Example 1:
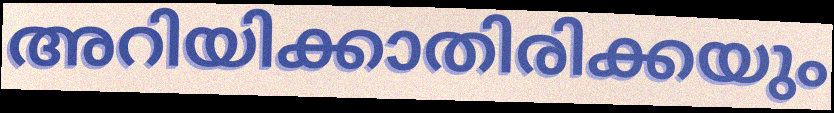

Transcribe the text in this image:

അറിയിക്കാതിരിക്കയും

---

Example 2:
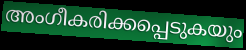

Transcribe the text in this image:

അംഗീകരിക്കപ്പെടുകയും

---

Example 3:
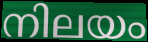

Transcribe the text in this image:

നിലയം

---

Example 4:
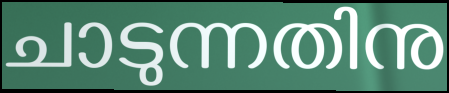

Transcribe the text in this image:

ചാടുന്നതിനു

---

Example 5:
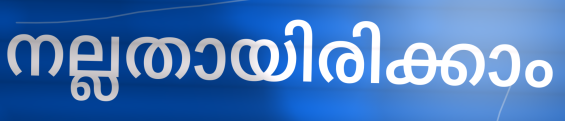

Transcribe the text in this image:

നല്ലതായിരിക്കാം